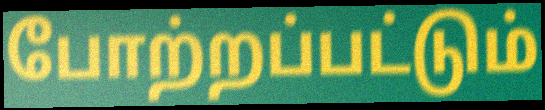
போற்றப்பட்டும்